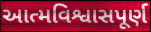
આત્મવિશ્વાસપૂર્ણ